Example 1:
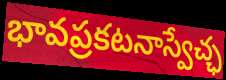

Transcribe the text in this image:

భావప్రకటనాస్వేచ్ఛ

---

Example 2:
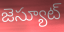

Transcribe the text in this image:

జెస్యూట్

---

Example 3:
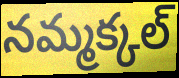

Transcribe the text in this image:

నమ్మక్కల్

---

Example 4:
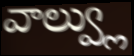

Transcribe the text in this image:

వాల్వ్లు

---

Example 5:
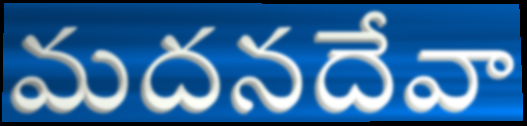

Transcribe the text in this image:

మదనదేవా